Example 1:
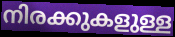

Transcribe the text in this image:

നിരക്കുകളുള്ള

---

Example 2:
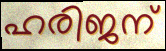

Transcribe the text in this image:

ഹരിജന്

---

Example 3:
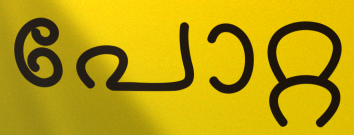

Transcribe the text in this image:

പോറ്റ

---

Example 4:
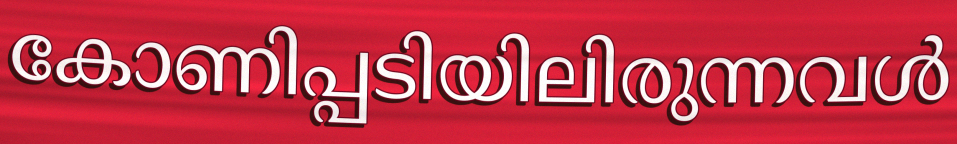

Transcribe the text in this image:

കോണിപ്പടിയിലിരുന്നവൾ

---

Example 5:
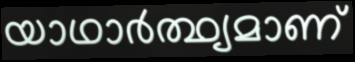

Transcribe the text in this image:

യാഥാർത്ഥ്യമാണ്